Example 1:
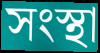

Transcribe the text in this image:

সংস্থা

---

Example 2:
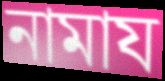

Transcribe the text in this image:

নামায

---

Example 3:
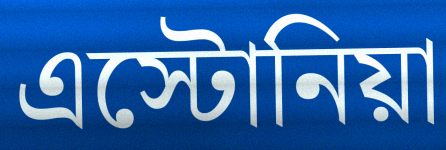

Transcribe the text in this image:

এস্টোনিয়া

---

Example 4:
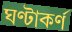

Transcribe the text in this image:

ঘণ্টাকর্ণ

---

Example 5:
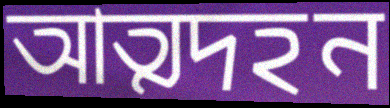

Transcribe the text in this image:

আত্মদহন